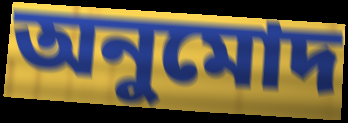
অনুমোদ